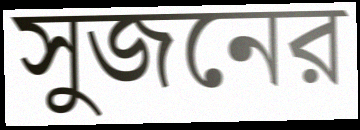
সুজনের